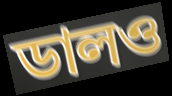
ডালও